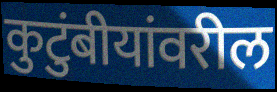
कुटुंबीयांवरील